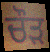
ਚੌੜ